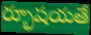
ర్భూషయతే